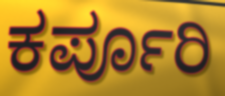
ಕರ್ಪೂರಿ